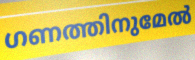
ഗണത്തിനുമേൽ